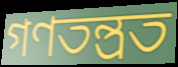
গণতন্ত্ৰত